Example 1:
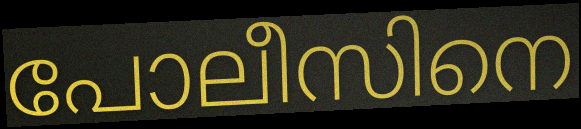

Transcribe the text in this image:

പോലീസിനെ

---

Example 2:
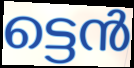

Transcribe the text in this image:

ട്ടെൻ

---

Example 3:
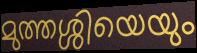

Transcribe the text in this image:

മുത്തശ്ശിയെയും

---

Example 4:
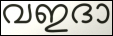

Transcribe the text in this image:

വഇദാ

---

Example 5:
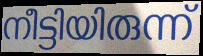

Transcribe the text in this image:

നീട്ടിയിരുന്ന്